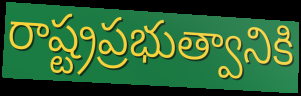
రాష్ట్రప్రభుత్వానికి